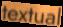
textual